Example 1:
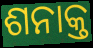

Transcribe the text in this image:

ଶନାକ୍ତ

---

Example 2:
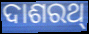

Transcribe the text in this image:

ଦାଶରଥ୍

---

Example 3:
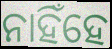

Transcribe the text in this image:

ନାହିଁହେ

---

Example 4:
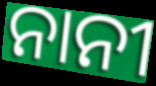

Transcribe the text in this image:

ନାନୀ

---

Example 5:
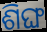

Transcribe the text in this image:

ଶିଙ୍ଘ